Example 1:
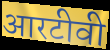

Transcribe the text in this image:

आरटीवी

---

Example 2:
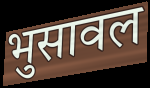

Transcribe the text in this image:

भुसावल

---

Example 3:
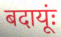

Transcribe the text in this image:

बदायूंः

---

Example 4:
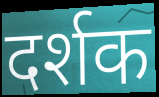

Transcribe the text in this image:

दर्शक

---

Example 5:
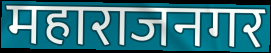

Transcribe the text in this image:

महाराजनगर